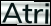
Atri